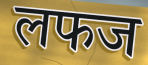
लफज